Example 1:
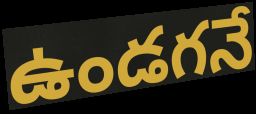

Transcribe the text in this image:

ఉండగనే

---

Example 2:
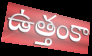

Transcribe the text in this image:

ఉత్తంకా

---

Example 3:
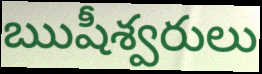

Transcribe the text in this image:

ఋషీశ్వరులు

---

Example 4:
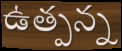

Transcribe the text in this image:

ఉత్పన్న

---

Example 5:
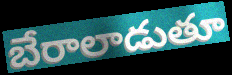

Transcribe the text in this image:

బేరాలాడుతూ